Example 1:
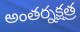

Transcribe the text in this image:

అంతర్నక్షత్ర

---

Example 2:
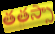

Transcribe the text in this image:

తతస్సా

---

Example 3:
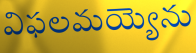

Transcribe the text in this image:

విఫలమయ్యెను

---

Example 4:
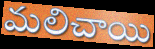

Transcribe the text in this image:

మలిచాయి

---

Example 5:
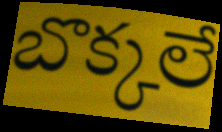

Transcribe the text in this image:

బొక్కలే